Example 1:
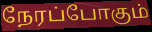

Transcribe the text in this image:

நேரப்போகும்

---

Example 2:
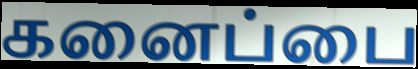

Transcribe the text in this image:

கனைப்பை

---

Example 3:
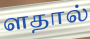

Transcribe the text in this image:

ளதால்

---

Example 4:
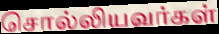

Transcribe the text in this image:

சொல்லியவர்கள்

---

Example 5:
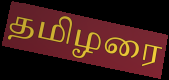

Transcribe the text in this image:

தமிழரை